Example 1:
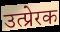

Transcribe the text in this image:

उत्प्रेरक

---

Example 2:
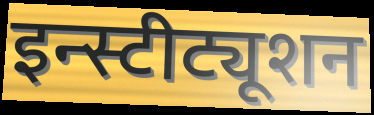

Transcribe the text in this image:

इन्स्टीट्यूशन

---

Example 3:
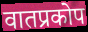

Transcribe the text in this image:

वातप्रकोप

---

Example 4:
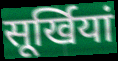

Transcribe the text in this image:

सूर्खियां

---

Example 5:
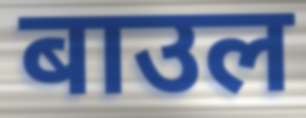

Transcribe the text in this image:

बाउल